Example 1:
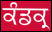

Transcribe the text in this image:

ਕੰਡਕ੍ਰ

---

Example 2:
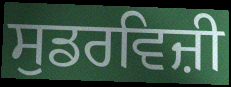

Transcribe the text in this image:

ਸੁਡਰਵਿਜ਼ੀ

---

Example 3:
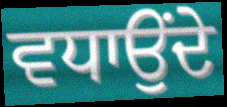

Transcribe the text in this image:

ਵਧਾਉੁਂਦੇ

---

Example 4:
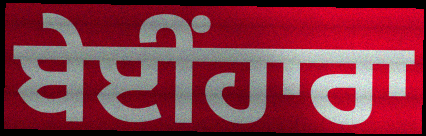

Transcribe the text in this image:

ਬੇਈਂਹਾਰਾ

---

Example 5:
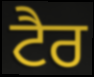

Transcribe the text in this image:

ਟੈਰ